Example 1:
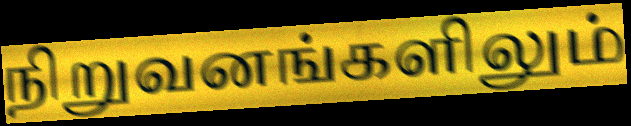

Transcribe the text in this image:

நிறுவனங்களிலும்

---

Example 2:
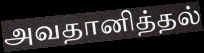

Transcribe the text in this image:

அவதானித்தல்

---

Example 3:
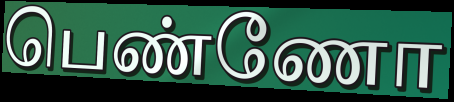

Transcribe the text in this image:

பெண்ணோ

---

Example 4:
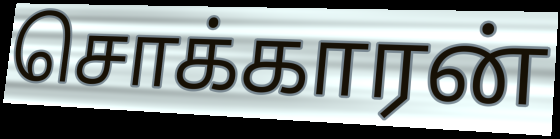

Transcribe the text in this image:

சொக்காரன்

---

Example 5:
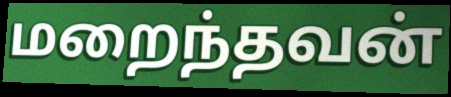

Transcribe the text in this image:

மறைந்தவன்